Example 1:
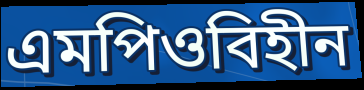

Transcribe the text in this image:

এমপিওবিহীন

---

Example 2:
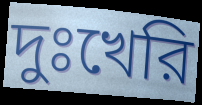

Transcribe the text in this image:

দুঃখেরি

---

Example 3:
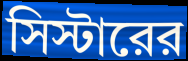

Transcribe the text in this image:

সিস্টারের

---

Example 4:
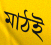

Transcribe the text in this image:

মাঠই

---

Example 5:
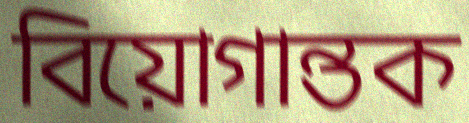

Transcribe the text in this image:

বিয়োগান্তক